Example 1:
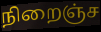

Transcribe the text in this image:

நிறைஞ்ச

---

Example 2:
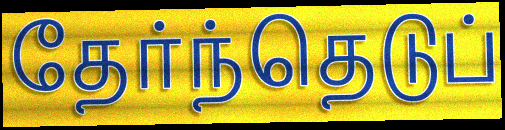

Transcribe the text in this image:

தேர்ந்தெடுப்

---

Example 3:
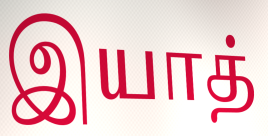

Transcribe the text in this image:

இயாத்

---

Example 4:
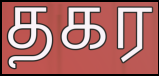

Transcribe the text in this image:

தகர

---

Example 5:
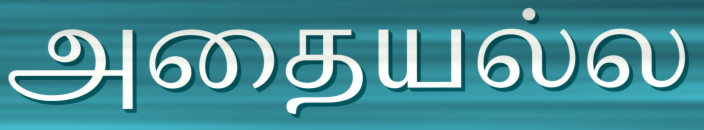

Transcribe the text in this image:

அதையல்ல